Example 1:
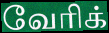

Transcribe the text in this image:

வேரிக்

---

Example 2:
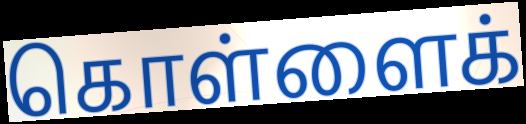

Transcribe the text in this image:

கொள்ளைக்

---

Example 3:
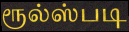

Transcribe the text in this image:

ரூல்ஸ்படி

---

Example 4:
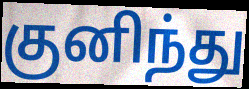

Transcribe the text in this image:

குனிந்து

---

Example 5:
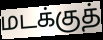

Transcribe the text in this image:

மடக்குத்